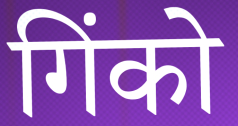
गिंको